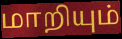
மாறியும்